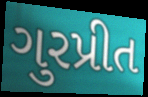
ગુરપ્રીત